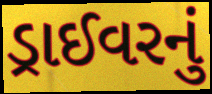
ડ્રાઈવરનું